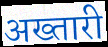
अख्तारी